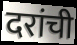
दरांची